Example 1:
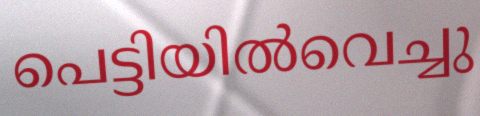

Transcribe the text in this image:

പെട്ടിയിൽവെച്ചു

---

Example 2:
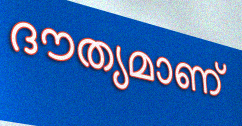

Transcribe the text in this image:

ദൗത്യമാണ്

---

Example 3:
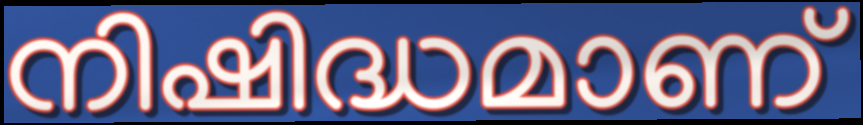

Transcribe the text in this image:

നിഷിദ്ധമാണ്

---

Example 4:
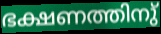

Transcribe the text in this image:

ഭക്ഷണത്തിനു്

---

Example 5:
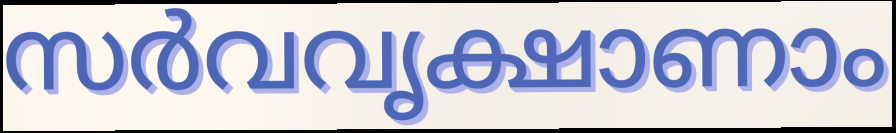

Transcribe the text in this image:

സർവവൃക്ഷാണാം